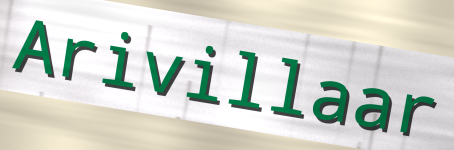
Arivillaar